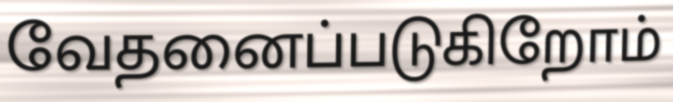
வேதனைப்படுகிறோம்